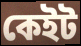
কেইট